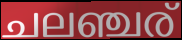
ചലഞ്ചര്